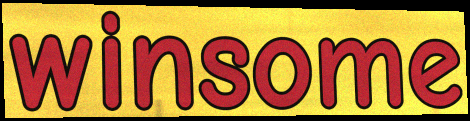
winsome